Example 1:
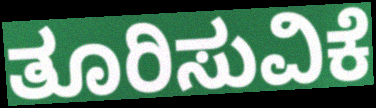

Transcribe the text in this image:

ತೂರಿಸುವಿಕೆ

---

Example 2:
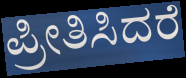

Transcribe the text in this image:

ಪ್ರೀತಿಸಿದರೆ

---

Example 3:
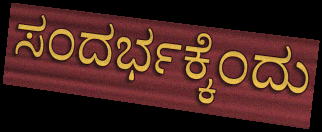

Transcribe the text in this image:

ಸಂದರ್ಭಕ್ಕೆಂದು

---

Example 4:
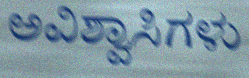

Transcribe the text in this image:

ಅವಿಶ್ವಾಸಿಗಳು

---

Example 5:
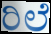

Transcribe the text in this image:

ರಿಲೆ